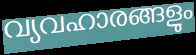
വ്യവഹാരങ്ങളും